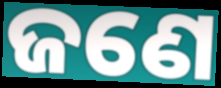
ଜଣେ